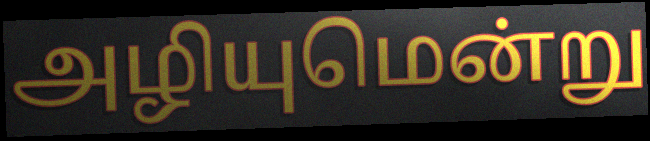
அழியுமென்று